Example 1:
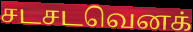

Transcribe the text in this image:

சடசடவெனக்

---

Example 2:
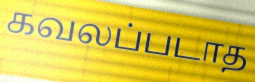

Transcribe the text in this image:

கவலப்படாத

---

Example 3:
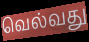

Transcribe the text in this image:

வெல்வது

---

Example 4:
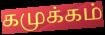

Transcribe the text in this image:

கமுக்கம்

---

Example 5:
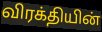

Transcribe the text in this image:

விரக்தியின்